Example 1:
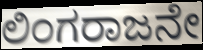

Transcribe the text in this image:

ಲಿಂಗರಾಜನೇ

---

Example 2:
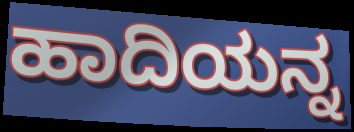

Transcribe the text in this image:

ಹಾದಿಯನ್ನ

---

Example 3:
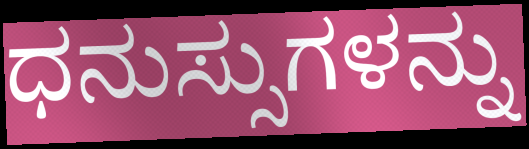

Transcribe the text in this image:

ಧನುಸ್ಸುಗಳನ್ನು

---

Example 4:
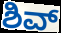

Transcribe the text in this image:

ಶಿವ್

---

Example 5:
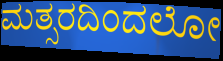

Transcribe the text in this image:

ಮತ್ಸರದಿಂದಲೋ